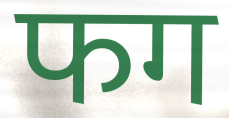
फग